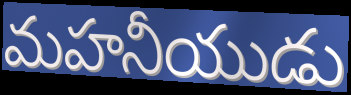
మహనీయుడు